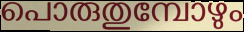
പൊരുതുമ്പോഴും